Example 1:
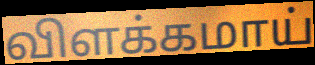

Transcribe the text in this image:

விளக்கமாய்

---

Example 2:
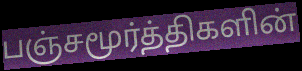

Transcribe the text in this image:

பஞ்சமூர்த்திகளின்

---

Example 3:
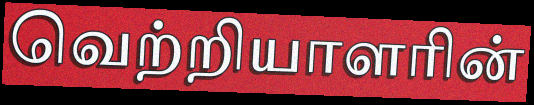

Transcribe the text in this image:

வெற்றியாளரின்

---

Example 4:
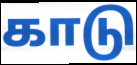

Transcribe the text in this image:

காடு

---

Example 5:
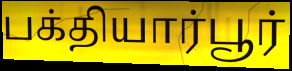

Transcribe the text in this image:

பக்தியார்பூர்